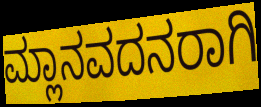
ಮ್ಲಾನವದನರಾಗಿ